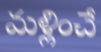
మళ్లించే